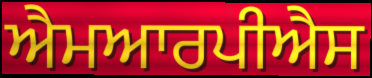
ਐਮਆਰਪੀਐਸ